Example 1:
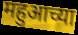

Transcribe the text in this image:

महुआच्या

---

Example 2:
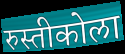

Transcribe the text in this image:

रुस्तीकोला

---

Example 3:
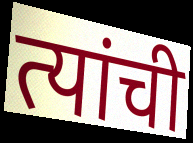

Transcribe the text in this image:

त्‍यांची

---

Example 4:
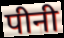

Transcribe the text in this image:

पीनी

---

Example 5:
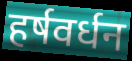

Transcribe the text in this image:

हर्षवर्धन